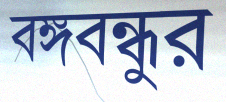
বঙ্গবন্ধুর